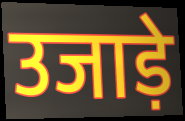
उजाड़े